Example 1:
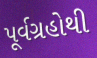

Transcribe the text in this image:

પૂર્વગ્રહોથી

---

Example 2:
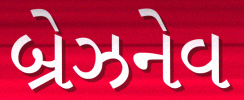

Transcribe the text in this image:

બ્રેઝનેવ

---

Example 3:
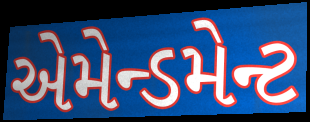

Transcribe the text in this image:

એમેન્ડમેન્ટ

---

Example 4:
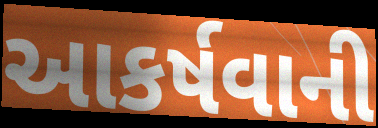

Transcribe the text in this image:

આકર્ષવાની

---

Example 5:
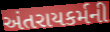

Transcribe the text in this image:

અંતરાયકર્મની